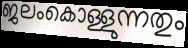
ജലംകൊള്ളുന്നതും